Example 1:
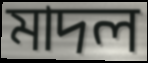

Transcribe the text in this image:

মাদল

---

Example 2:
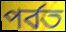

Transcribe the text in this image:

পৰ্বত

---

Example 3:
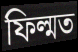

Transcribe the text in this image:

ফিল্মত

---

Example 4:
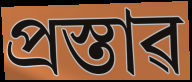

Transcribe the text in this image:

প্ৰস্তাৱ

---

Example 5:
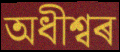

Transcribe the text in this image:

অধীশ্বৰ